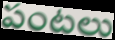
పంటలు